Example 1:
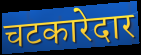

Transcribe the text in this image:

चटकारेदार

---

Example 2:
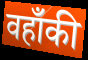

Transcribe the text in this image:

वहाँकी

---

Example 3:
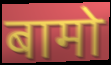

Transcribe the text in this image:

बामो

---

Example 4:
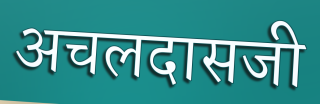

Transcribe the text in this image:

अचलदासजी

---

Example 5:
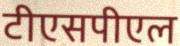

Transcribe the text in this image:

टीएसपीएल